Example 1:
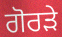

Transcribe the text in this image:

ਗੋਰੜੇ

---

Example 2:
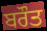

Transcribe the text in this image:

ਬਰੌਤ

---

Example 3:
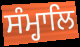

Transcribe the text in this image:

ਸੰਮ੍ਹ੍ਹਾਲਿ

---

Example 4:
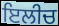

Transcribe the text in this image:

ਇਲੀਚ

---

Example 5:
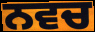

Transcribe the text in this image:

ਨਵਚ